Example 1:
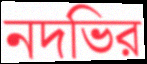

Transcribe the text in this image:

নদভির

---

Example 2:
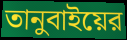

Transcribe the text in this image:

তানুবাইয়ের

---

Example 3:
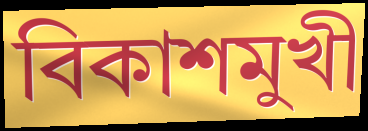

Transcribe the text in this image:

বিকাশমুখী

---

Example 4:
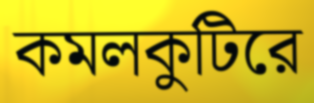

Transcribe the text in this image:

কমলকুটিরে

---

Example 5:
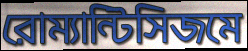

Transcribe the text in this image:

রোম্যান্টিসিজমে